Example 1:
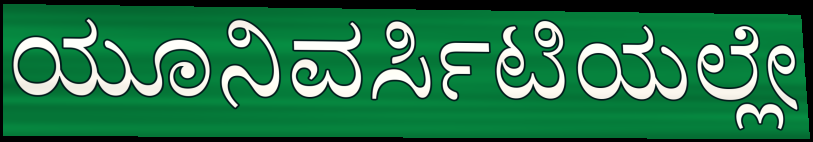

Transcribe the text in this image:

ಯೂನಿವರ್ಸಿಟಿಯಲ್ಲೇ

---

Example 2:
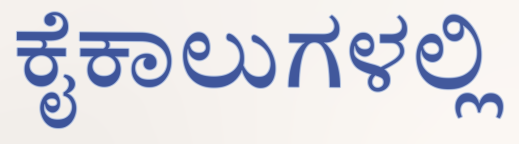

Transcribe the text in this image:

ಕೈಕಾಲುಗಳಲ್ಲಿ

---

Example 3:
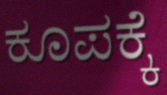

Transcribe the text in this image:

ಕೂಪಕ್ಕೆ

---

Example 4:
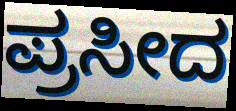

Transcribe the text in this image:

ಪ್ರಸೀದ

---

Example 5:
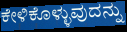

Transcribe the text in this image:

ಕೇಳಿಕೊಳ್ಳುವುದನ್ನು